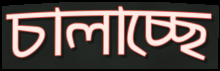
চালাচ্ছে